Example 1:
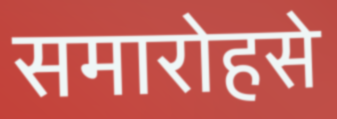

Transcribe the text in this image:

समारोहसे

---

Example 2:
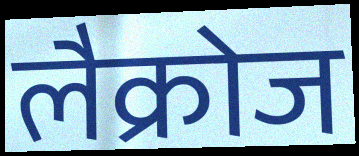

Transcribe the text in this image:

लैक्रोज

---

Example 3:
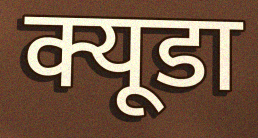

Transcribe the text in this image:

क्यूडा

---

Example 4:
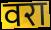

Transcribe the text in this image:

वरा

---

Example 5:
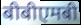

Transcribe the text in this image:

बीबीएमबी